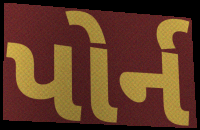
પોર્ન